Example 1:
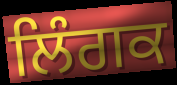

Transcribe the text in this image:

ਲਿੰਗਕ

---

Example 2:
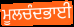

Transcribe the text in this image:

ਮੂਲਚੰਦਭਾਈ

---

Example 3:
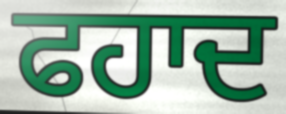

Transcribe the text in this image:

ਫਹਾਦ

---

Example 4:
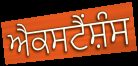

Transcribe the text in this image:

ਐਕਸਟੈਂਸ਼ੰਸ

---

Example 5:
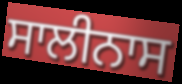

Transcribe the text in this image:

ਸਾਲੀਨਾਸ